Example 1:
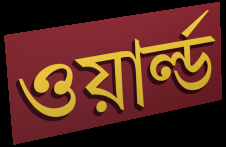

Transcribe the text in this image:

ওয়ার্ল্ড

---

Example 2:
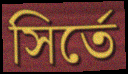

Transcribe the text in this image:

সির্তে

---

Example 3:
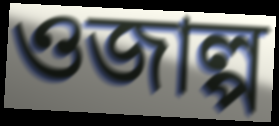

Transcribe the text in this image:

ওজাল্প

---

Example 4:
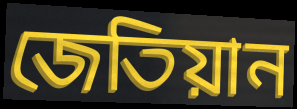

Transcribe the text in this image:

জেতিয়ান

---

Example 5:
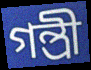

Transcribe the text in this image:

গন্ত্রী